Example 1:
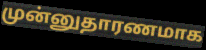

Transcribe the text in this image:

முன்னுதாரணமாக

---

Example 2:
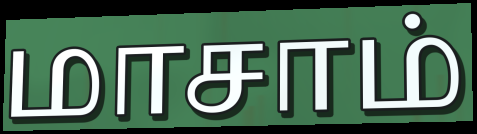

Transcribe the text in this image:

மாசாம்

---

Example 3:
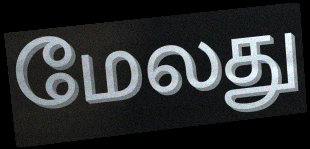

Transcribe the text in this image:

மேலது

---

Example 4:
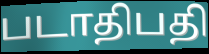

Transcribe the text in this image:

படாதிபதி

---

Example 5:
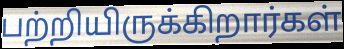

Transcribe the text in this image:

பற்றியிருக்கிறார்கள்